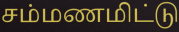
சம்மணமிட்டு